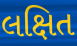
લક્ષિત